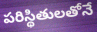
పరిస్థితులతోనే